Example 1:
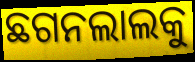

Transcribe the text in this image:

ଛଗନଲାଲକୁ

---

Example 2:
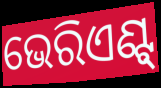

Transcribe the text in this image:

ଭେରିଏଣ୍ଟ୍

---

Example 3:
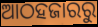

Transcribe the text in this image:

ଆଠହଜାରରୁ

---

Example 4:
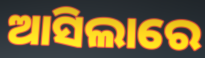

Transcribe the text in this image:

ଆସିଲାରେ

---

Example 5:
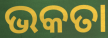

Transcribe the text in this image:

ଭକତା